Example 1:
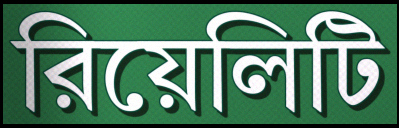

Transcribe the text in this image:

রিয়েলিটি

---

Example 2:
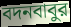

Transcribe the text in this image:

বদনবাবুর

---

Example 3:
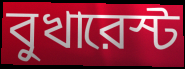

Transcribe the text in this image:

বুখারেস্ট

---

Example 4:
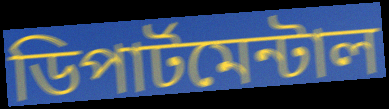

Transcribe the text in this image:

ডিপার্টমেন্টাল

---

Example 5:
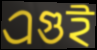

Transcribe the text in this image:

এগুই